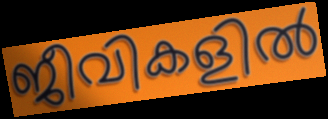
ജീവികളിൽ